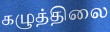
கழுத்திலை